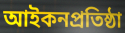
আইকনপ্রতিষ্ঠা